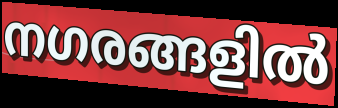
നഗരങ്ങളിൽ